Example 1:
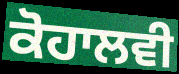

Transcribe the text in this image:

ਕੋਹਾਲਵੀ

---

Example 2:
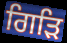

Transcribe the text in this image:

ਗਿੜਿ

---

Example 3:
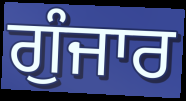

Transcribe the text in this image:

ਗੁੰਜਾਰ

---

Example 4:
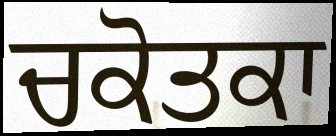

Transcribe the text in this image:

ਚਕੋਤਕਾ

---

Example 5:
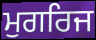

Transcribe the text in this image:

ਮੁਗਰਿਜ